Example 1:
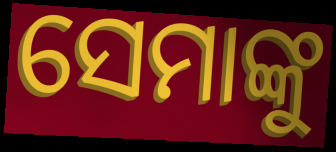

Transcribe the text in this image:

ସେମାଙ୍କୁ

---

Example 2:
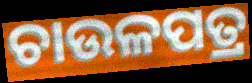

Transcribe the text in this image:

ଚାଉଳପତ୍ର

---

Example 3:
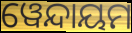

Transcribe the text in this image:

ୱେନ୍ଦାୟମ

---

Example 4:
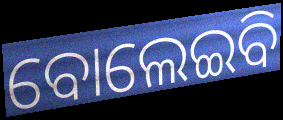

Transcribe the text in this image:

ବୋଲେଇବି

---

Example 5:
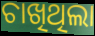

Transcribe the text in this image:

ଚାଖିଥିଲା